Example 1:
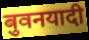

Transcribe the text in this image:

बुवनयादी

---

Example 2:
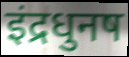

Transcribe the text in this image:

इंद्रधुनष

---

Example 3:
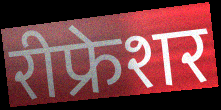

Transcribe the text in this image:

रीफ्रेशर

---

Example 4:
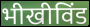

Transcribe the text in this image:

भीखीविंड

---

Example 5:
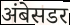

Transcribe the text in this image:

अंबेसडर